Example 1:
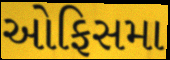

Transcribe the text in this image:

ઓફિસમા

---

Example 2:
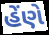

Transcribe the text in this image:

હેંણે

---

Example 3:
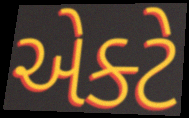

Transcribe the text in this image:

એક્ટે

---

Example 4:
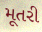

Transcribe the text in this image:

મૂતરી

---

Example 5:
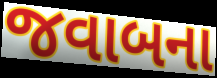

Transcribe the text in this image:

જવાબના